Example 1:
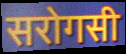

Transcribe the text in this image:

सरोगसी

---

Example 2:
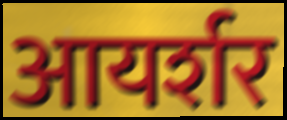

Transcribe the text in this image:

आयर्शर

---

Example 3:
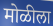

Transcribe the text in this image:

मोळीला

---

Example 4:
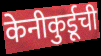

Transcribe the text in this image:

केनीकुर्डूची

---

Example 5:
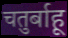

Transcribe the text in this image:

चतुर्बाहू